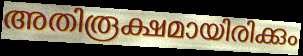
അതിരൂക്ഷമായിരിക്കും